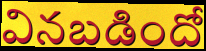
వినబడిందో